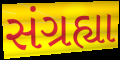
સંગ્રહ્યા